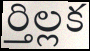
ర్తిల్లక